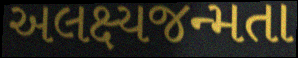
અલક્ષ્યજન્મતા